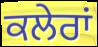
ਕਲੇਰਾਂ